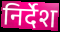
निर्देश